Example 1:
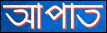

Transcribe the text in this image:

আপাত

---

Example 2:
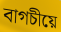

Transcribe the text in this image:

বাগচীয়ে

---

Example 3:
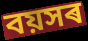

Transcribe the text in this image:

বয়সৰ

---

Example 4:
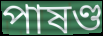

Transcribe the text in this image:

পাষণ্ড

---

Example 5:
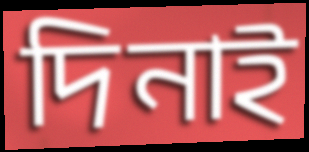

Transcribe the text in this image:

দিনাই